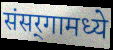
संसर्गामध्ये